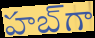
హబ్‌గా